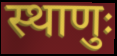
स्थाणुः